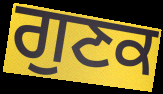
ਗੁਣਕ